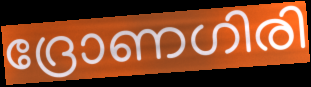
ദ്രോണഗിരി